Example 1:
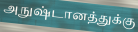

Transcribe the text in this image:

அநுஷ்டானத்துக்கு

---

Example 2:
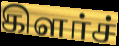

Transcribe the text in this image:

கிளர்ச்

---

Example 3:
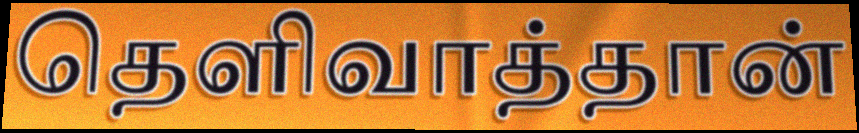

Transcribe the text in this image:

தெளிவாத்தான்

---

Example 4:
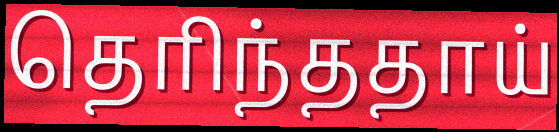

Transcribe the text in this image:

தெரிந்ததாய்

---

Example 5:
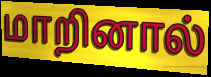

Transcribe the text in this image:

மாறினால்